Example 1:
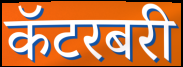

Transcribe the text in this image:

कॅटरबरी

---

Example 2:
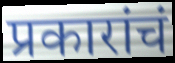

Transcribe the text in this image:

प्रकारांचं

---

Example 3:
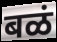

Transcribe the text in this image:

बळं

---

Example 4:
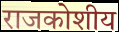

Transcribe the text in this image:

राजकोशीय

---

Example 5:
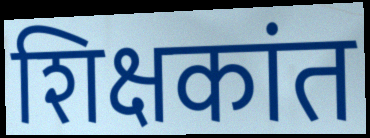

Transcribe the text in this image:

शिक्षकांत